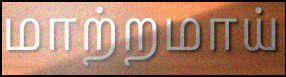
மாற்றமாய்